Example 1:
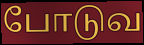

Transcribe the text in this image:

போடுவ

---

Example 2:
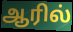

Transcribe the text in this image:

ஆரில்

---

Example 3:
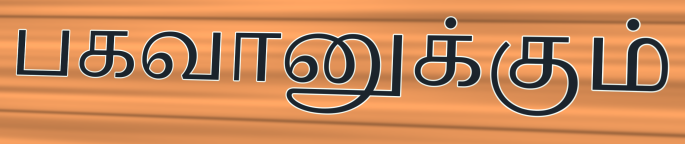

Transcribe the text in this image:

பகவானுக்கும்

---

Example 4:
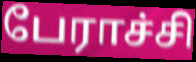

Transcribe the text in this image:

பேராச்சி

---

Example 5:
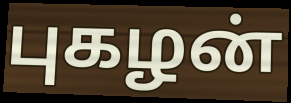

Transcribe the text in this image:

புகழன்